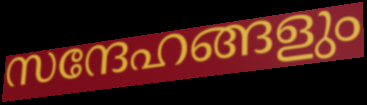
സന്ദേഹങ്ങളും